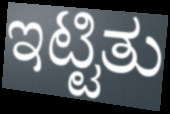
ಇಟ್ಟಿತು